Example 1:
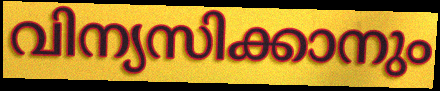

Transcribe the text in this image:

വിന്യസിക്കാനും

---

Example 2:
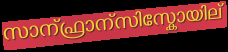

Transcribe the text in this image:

സാന്ഫ്രാന്സിസ്കോയില്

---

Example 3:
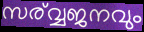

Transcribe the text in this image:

സര്വ്വജനവും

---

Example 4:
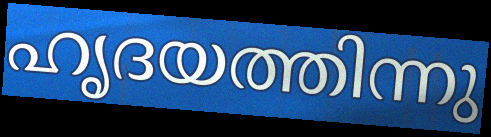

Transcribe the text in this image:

ഹൃദയത്തിന്നു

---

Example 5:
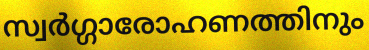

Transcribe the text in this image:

സ്വർഗ്ഗാരോഹണത്തിനും